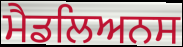
ਮੈਡਲਿਅਨਸ